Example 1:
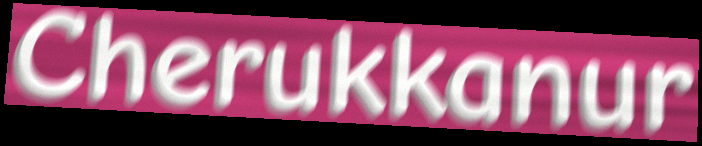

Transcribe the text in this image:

Cherukkanur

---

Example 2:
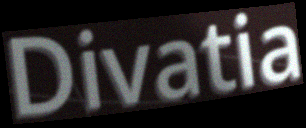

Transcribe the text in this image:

Divatia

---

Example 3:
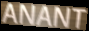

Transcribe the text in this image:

ANANT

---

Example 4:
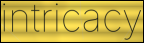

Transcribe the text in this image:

intricacy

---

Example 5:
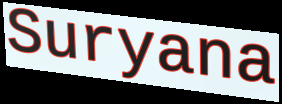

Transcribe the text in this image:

Suryana